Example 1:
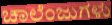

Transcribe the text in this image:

ಚಾಲೆಂಜುಗಳು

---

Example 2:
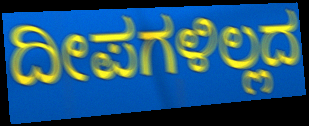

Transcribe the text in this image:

ದೀಪಗಳಿಲ್ಲದ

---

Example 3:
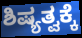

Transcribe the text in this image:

ಶಿಷ್ಯತ್ವಕ್ಕೆ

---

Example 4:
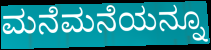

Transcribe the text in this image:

ಮನೆಮನೆಯನ್ನೂ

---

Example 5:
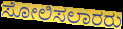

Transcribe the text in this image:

ಸೋಲಿಸಲಾರರು